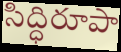
సిద్ధిరూపా